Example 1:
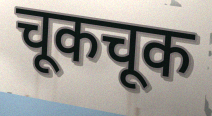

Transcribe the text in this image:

चूकचूक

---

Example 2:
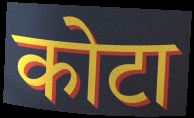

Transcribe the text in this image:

कोटा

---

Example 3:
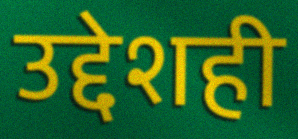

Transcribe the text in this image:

उद्देशही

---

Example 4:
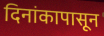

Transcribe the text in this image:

दिनांकापासून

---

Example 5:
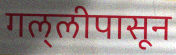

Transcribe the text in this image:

गल्लीपासून